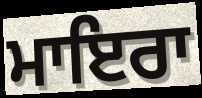
ਮਾਇਰਾ